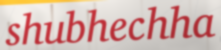
shubhechha